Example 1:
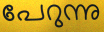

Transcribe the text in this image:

പേറുന്നു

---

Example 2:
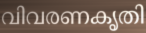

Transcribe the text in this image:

വിവരണകൃതി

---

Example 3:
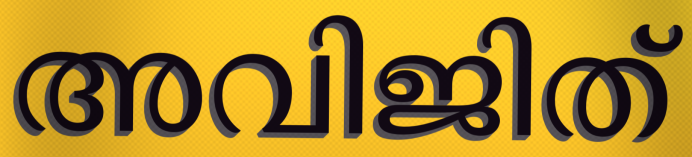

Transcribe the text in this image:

അവിജിത്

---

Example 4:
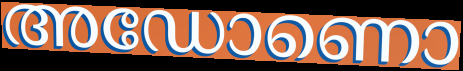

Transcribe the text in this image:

അഡോണൊ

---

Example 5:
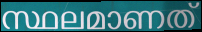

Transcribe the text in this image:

സ്ഥലമാണത്